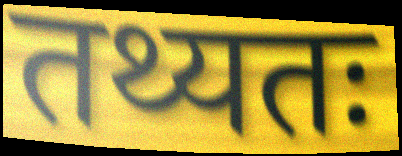
तथ्यतः